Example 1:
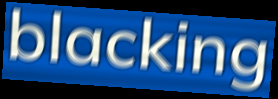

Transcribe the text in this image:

blacking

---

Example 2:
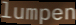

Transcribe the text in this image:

lumpen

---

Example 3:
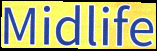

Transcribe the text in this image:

Midlife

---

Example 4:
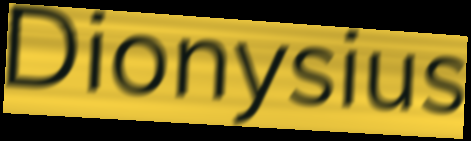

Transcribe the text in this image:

Dionysius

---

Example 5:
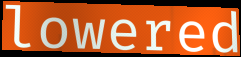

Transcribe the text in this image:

lowered